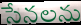
సేనలను